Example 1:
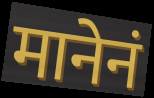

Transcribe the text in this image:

मानेनं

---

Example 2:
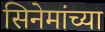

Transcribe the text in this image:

सिनेमांच्या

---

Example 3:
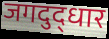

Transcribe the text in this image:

जगदुद्धार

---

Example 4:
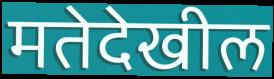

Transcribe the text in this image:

मतेदेखील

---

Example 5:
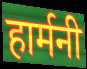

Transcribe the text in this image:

हार्मनी